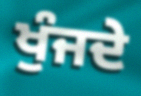
ਖੁੰਜਦੇ